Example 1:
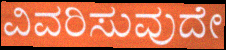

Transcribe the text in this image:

ವಿವರಿಸುವುದೇ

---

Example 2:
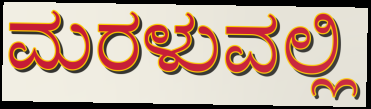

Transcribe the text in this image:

ಮರಳುವಲ್ಲಿ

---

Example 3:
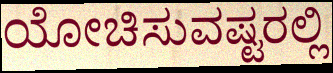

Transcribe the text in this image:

ಯೋಚಿಸುವಷ್ಟರಲ್ಲಿ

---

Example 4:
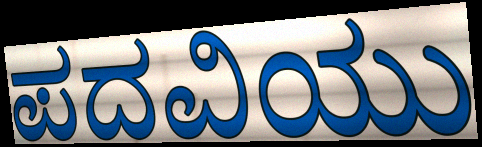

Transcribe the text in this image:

ಪದವಿಯು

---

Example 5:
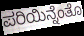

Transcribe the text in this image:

ಪರಿಯಿನ್ನೆಂತೊ